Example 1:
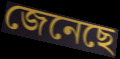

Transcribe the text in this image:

জেনেছে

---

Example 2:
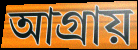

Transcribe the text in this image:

আগ্রায়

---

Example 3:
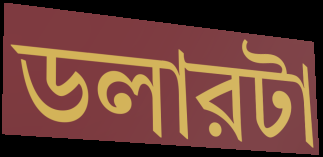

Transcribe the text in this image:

ডলারটা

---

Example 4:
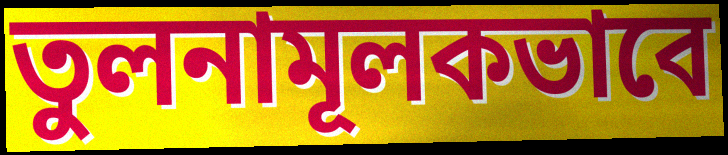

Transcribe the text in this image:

তুলনামূলকভাবে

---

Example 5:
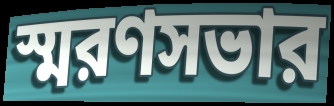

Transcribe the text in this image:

স্মরণসভার